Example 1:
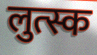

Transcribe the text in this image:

लुत्स्क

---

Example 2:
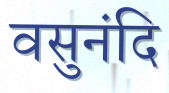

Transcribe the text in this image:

वसुनंदि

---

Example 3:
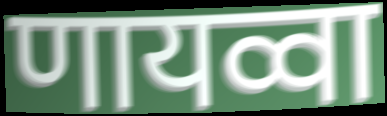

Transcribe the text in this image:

णायव्वा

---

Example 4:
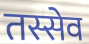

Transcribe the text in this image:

तस्सेव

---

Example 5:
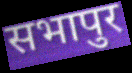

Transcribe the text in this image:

सभापुर